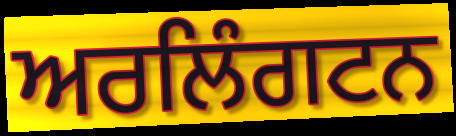
ਅਰਲਿੰਗਟਨ